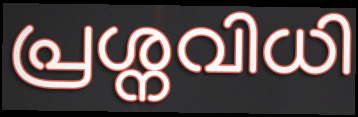
പ്രശ്നവിധി